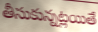
తీసుకున్నట్లయితే